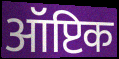
ऑप्टिक